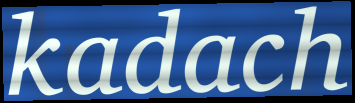
kadach